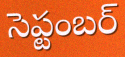
సెప్టంబర్